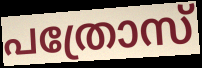
പത്രോസ്